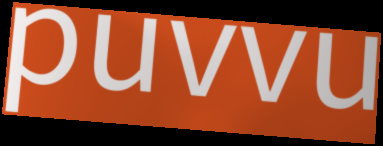
puvvu